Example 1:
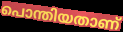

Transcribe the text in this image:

പൊന്തിയതാണ്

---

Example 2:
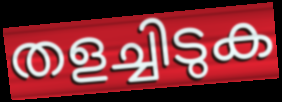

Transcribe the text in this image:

തളച്ചിടുക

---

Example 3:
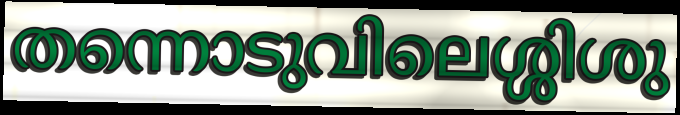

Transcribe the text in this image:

തന്നൊടുവിലെശ്ശിശു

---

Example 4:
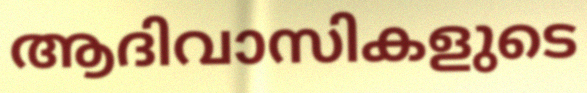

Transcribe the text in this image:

ആദിവാസികളുടെ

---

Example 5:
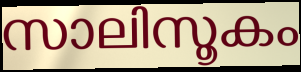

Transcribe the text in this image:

സാലിസൂകം